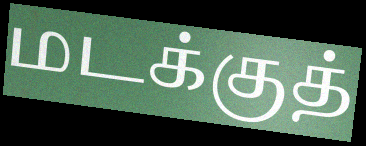
மடக்குத்